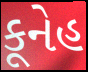
કૂનેહ